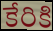
కేరికి